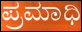
ಪ್ರಮಾಧಿ